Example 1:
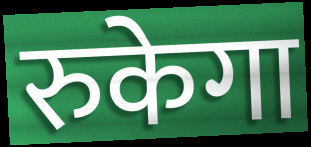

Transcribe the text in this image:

रुकेगा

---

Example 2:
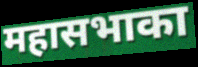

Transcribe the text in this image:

महासभाका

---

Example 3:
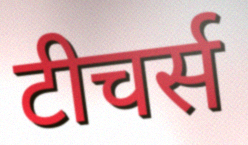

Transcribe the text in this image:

टीचर्स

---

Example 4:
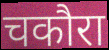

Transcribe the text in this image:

चकौरा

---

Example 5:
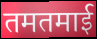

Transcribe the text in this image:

तमतमाई